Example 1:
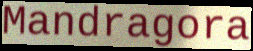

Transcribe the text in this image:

Mandragora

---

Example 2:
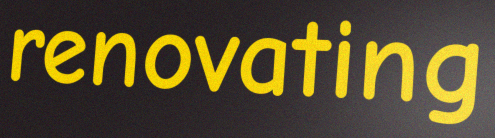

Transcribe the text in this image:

renovating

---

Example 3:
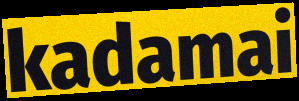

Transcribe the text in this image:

kadamai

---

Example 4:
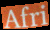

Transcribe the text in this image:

Afri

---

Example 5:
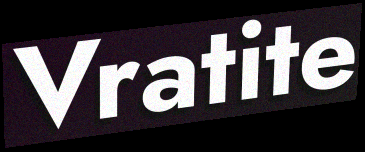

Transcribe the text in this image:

Vratite